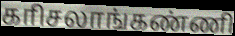
கரிசலாங்கண்ணி